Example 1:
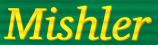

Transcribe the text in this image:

Mishler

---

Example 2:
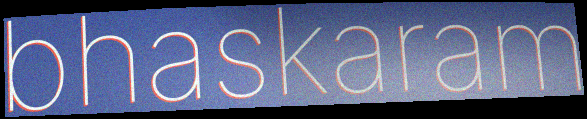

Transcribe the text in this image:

bhaskaram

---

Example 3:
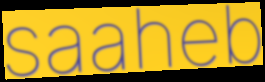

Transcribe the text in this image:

saaheb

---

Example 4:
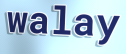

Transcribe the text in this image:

walay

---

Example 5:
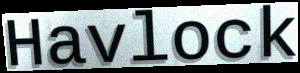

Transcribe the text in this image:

Havlock